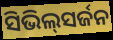
ସିଭିଲ୍‌ସର୍ଜନ